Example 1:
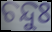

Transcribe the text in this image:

ଚନ୍ଦୁଃ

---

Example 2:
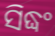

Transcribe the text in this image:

ସିଦ୍ଧଂ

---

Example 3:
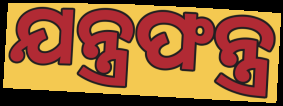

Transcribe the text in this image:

ଯନ୍ତ୍ରଫନ୍ତ୍ର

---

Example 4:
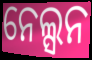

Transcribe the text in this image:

ନେଲ୍ସନ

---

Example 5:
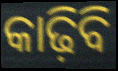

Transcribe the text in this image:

କାଢ଼ିବି